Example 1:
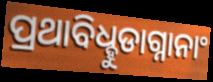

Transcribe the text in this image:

ପ୍ରଥାବିଧ୍ହୁଡାଗ୍ନାନାଂ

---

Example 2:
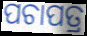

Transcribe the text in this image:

ପଚାପତ୍ର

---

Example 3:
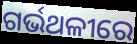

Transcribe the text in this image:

ଗର୍ଭଥଳୀରେ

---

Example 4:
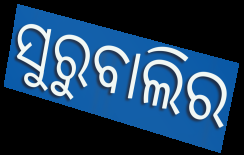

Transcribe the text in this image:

ସୁରୁବାଲିର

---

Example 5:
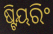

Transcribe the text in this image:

ଷ୍ଟିୟରିଂ